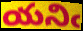
యనిఁ